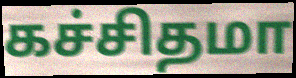
கச்சிதமா